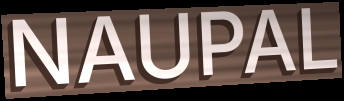
NAUPAL